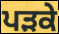
ਪੜਕੇ